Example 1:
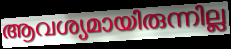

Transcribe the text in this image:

ആവശ്യമായിരുന്നില്ല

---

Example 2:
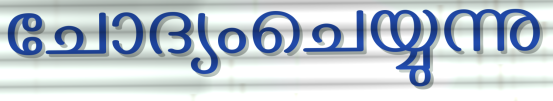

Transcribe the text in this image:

ചോദ്യംചെയ്യുന്നു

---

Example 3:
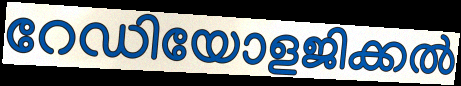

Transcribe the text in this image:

റേഡിയോളജിക്കൽ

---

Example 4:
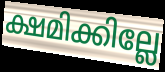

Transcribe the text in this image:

ക്ഷമിക്കില്ലേ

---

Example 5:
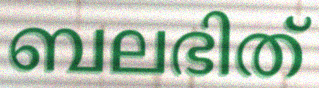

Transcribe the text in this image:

ബലഭിത്